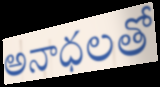
అనాధలతో